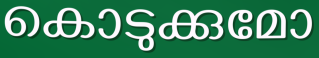
കൊടുക്കുമോ